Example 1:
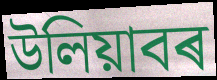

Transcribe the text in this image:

উলিয়াবৰ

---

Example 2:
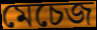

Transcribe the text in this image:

মেচেজ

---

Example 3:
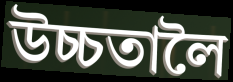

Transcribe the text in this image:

উচ্চতালৈ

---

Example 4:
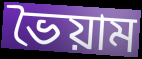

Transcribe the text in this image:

ভৈয়াম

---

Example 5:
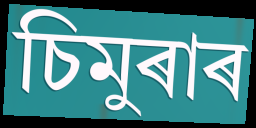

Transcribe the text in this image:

চিমুৰাৰ